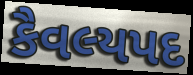
કૈવલ્યપદ